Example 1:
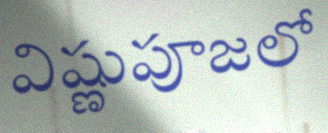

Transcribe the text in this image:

విష్ణుపూజలో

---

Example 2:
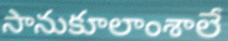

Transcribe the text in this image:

సానుకూలాంశాలే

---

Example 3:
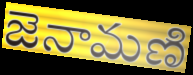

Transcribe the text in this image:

జెనామణి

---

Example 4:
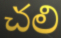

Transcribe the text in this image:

చలి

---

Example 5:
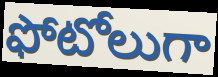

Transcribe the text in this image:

ఫోటోలుగా